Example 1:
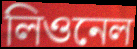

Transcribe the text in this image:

লিওনেল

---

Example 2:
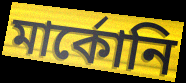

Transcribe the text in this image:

মার্কোনি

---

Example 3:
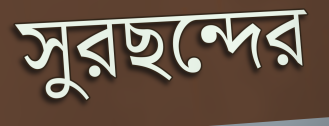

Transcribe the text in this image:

সুরছন্দের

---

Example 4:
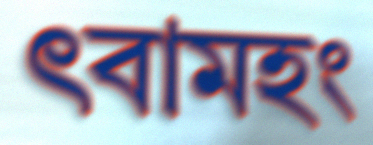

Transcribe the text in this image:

ৎবামহং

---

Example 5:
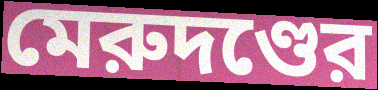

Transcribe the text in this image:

মেরুদণ্ডের